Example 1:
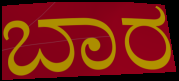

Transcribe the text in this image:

ಬಾರ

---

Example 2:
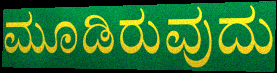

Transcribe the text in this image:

ಮೂಡಿರುವುದು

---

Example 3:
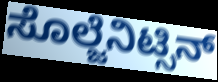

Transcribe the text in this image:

ಸೊಲ್ಜೆನಿಟ್ಸಿನ್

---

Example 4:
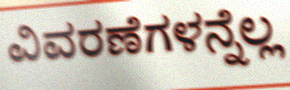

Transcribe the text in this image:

ವಿವರಣೆಗಳನ್ನೆಲ್ಲ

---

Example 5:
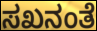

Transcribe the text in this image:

ಸಖನಂತೆ